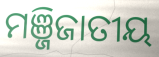
ମଞ୍ଜିଜାତୀୟ